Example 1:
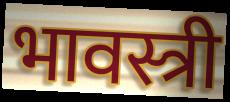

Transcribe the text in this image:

भावस्त्री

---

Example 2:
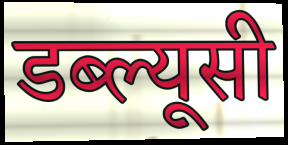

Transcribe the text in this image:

डब्ल्यूसी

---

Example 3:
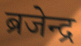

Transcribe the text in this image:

ब्रजेन्द्र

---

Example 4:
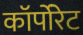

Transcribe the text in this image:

कॉर्पोरेट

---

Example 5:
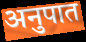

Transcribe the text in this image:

अनुपात